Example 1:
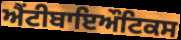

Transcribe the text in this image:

ਐਂਟੀਬਾਇਔਟਿਕਸ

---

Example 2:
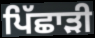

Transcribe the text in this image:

ਪਿੱਛਾੜੀ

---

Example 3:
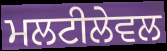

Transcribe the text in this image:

ਮਲਟੀਲੇਵਲ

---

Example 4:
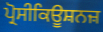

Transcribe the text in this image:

ਪ੍ਰੋਸੀਕਿਊਸ਼ਨਜ਼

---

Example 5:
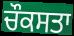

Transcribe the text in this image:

ਚੌਕਸਤਾ